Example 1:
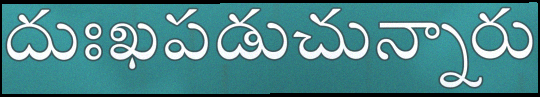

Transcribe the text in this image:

దుఃఖపడుచున్నారు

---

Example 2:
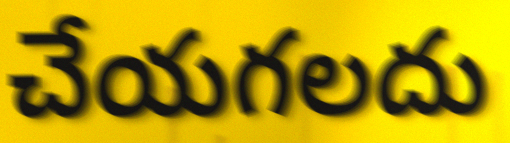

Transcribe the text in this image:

చేయగలదు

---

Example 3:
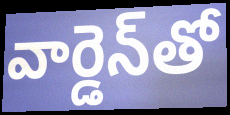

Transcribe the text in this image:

వార్డెన్‌తో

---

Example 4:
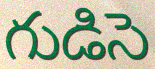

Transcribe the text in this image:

గుడిసె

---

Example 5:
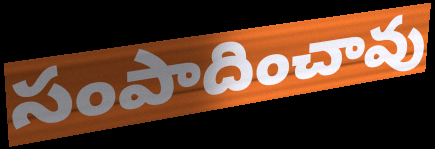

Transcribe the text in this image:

సంపాదించావు